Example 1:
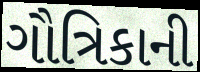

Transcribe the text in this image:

ગૌત્રિકાની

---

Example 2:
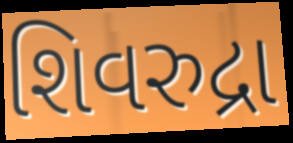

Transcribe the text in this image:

શિવરુદ્રા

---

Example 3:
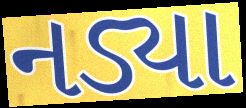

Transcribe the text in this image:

નડ્યા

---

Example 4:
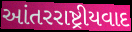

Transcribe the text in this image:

આંતરરાષ્ટ્રીયવાદ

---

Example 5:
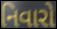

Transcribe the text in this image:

નિવારો